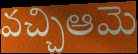
వచ్చిఆమె